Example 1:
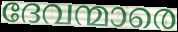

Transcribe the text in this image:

ദേവന്മാരെ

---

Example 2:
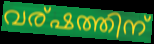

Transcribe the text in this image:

വര്ഷത്തിന്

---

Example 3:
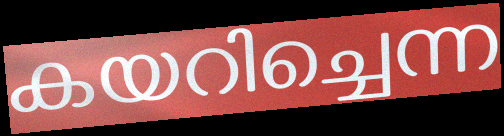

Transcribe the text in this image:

കയറിച്ചെന്ന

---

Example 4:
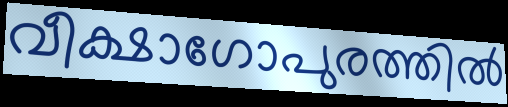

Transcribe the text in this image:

വീക്ഷാഗോപുരത്തിൽ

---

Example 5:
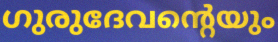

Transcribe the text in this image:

ഗുരുദേവന്റെയും